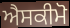
ਐਸਕੀਮੋ